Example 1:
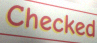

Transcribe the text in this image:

Checked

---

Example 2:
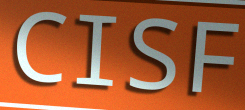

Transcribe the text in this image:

CISF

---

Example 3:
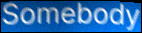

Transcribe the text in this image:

Somebody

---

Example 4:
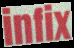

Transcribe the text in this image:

infix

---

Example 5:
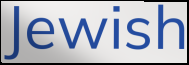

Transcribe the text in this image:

Jewish